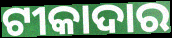
ଟୀକାଦାର